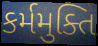
કર્મમુક્તિ